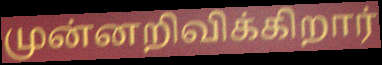
முன்னறிவிக்கிறார்